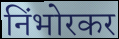
निंभोरकर